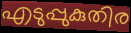
എടുപ്പുകുതിര